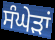
ਸੰਘੇੜਾਂ